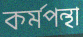
কৰ্মপন্থা